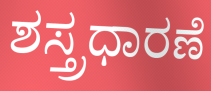
ಶಸ್ತ್ರಧಾರಣೆ